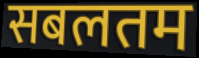
सबलतम